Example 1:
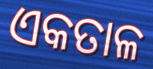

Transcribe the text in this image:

ଏକତାଳ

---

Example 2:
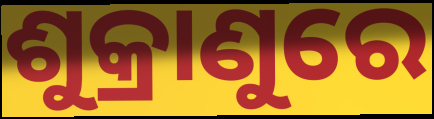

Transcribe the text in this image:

ଶୁକ୍ରାଣୁରେ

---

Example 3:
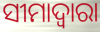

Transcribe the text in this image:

ସୀମାଦ୍ଵାରା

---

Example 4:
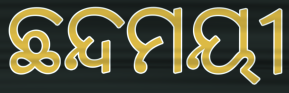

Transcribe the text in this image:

ଛନ୍ଦମୟୀ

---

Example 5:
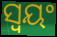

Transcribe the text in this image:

ସ୍ଵୟଂ